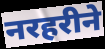
नरहरीने